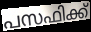
പസഫിക്ക്